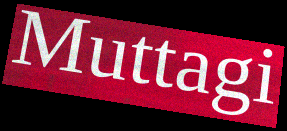
Muttagi